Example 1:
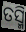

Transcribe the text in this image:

ତସ୍ମି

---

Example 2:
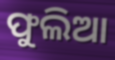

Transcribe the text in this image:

ଫୁଲିଆ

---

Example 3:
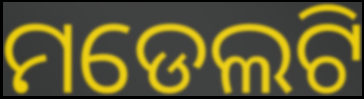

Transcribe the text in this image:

ମଡେଲଟି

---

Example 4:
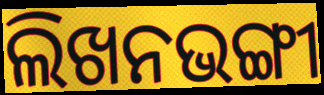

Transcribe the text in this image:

ଲିଖନଭଙ୍ଗୀ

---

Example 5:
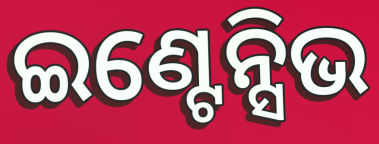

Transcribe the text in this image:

ଇଣ୍ଟେନ୍ସିଭ